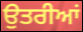
ਉਤਰੀਆਂ